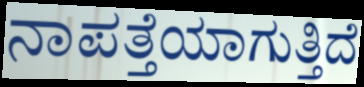
ನಾಪತ್ತೆಯಾಗುತ್ತಿದೆ